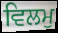
ਵਿਲਮੁ